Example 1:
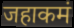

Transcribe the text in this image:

जहाकमं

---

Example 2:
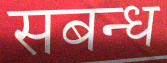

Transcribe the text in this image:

सबन्ध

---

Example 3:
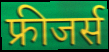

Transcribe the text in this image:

फ्रीजर्स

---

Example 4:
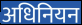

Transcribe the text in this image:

अधिनियन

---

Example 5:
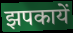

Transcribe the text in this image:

झपकायें